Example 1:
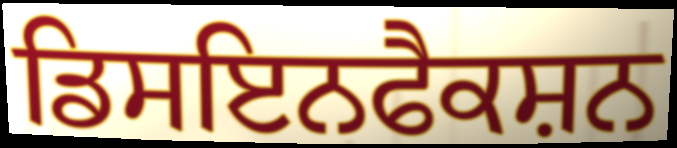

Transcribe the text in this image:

ਡਿਸਇਨਫੈਕਸ਼ਨ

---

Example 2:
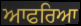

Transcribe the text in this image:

ਆਫਰਿਆ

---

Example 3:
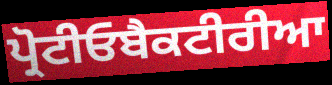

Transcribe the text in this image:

ਪ੍ਰੋਟੀਓਬੈਕਟੀਰੀਆ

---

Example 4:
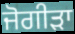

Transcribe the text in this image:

ਜੋਗੀੜਾ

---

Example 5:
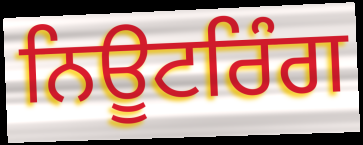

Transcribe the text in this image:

ਨਿਊਟਰਿੰਗ